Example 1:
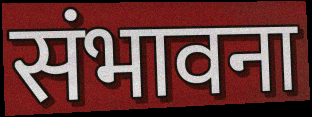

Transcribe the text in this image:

संभावना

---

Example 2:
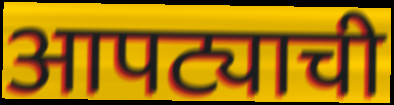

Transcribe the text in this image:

आपट्याची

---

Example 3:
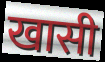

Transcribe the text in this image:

खासी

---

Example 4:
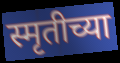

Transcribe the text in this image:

स्मृतीच्या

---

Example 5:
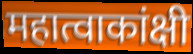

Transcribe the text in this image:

महात्वाकांक्षी